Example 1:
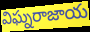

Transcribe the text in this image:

విఘ్నరాజాయ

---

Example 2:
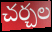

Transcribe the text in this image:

చర్చల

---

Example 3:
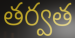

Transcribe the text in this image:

తర్వత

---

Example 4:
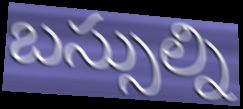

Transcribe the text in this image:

బస్సుల్ని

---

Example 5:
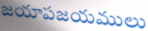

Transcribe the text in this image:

జయాపజయములు